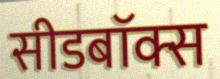
सीडबॉक्स